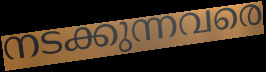
നടക്കുന്നവരെ